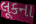
લૂકના